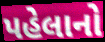
પહેલાનો